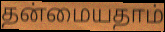
தன்மையதாம்